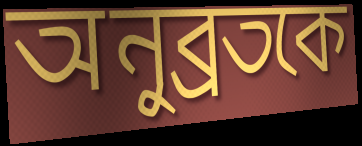
অনুব্রতকে